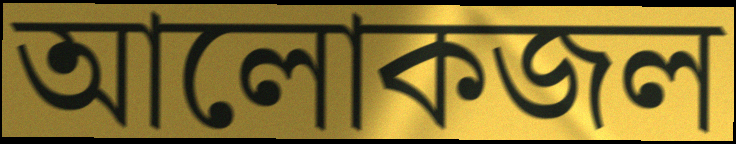
আলোকজল